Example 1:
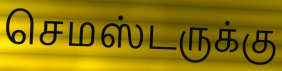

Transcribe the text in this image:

செமஸ்டருக்கு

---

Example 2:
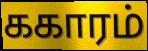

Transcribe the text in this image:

ககாரம்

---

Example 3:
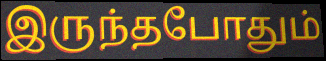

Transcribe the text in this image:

இருந்தபோதும்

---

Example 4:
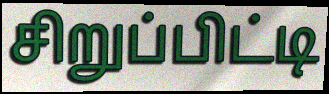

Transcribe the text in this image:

சிறுப்பிட்டி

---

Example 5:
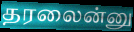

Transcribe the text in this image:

தரலைன்னு